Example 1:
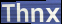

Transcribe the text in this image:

Thnx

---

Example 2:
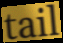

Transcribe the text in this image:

tail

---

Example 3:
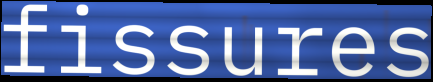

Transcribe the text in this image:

fissures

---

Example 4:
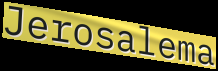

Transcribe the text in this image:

Jerosalema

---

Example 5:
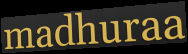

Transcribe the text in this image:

madhuraa